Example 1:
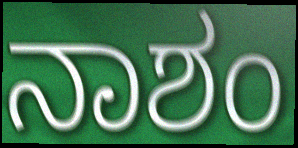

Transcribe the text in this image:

ನಾಶಂ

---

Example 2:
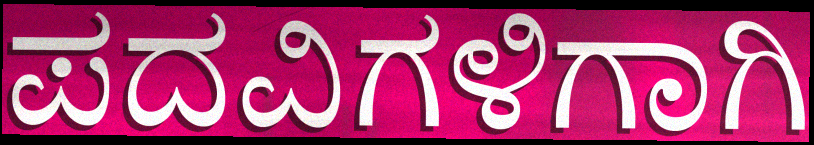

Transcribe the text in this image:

ಪದವಿಗಳಿಗಾಗಿ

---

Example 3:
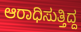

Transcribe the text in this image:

ಆರಾಧಿಸುತ್ತಿದ್ದ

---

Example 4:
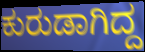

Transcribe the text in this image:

ಕುರುಡಾಗಿದ್ದ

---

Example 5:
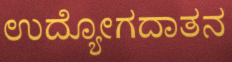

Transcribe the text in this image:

ಉದ್ಯೋಗದಾತನ